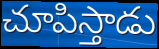
చూపిస్తాడు